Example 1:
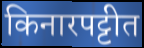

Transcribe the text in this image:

किनारपट्टीत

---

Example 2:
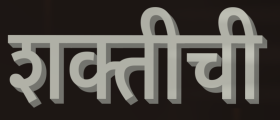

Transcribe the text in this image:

शक्तीची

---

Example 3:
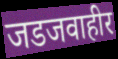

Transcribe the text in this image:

जडजवाहीर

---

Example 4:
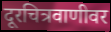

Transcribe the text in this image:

दूरचित्रवाणीवर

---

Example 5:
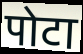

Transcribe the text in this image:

पोटा